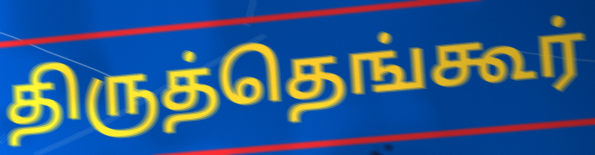
திருத்தெங்கூர்